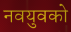
नवयुवको